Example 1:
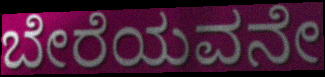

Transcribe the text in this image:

ಬೇರೆಯವನೇ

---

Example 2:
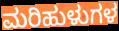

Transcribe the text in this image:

ಮರಿಹುಳುಗಳ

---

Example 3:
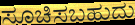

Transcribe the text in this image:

ಸೂಚಿಸಬಹುದು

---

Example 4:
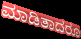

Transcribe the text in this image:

ಮಾಡಿತಾದರೂ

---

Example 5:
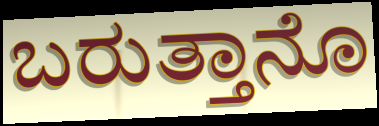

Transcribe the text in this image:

ಬರುತ್ತಾನೊ